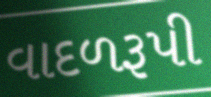
વાદળરૂપી